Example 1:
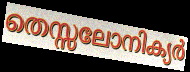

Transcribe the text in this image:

തെസ്സലോനിക്യർ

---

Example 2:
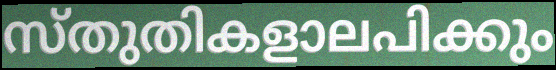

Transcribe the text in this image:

സ്തുതികളാലപിക്കും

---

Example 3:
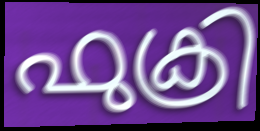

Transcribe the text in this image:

ഫുക്രി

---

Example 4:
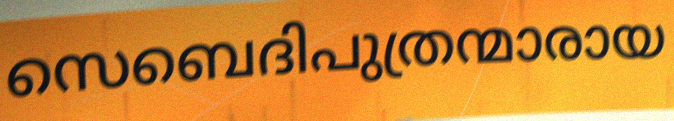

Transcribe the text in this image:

സെബെദിപുത്രന്മാരായ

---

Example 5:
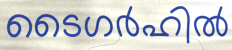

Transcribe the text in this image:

ടൈഗർഹിൽ